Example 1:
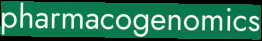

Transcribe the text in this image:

pharmacogenomics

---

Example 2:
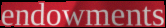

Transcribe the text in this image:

endowments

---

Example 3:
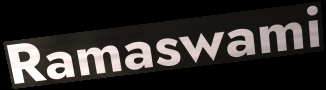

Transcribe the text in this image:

Ramaswami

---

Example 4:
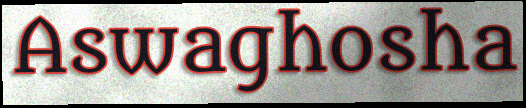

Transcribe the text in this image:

Aswaghosha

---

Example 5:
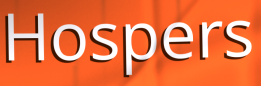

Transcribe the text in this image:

Hospers